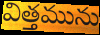
విత్తమును